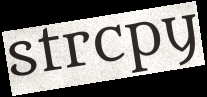
strcpy